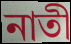
নাতী